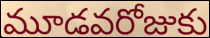
మూడవరోజుకు